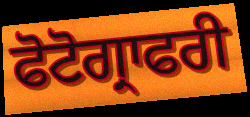
ਫੋਟੋਗ੍ਰਾਫਰੀ